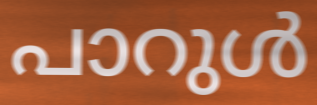
പാറുൾ